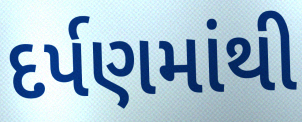
દર્પણમાંથી